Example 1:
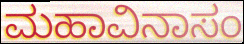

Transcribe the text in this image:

ಮಹಾವಿನಾಸಂ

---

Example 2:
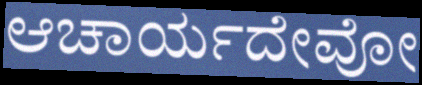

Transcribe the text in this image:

ಆಚಾರ್ಯದೇವೋ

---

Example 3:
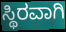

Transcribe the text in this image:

ಸ್ಥಿರವಾಗಿ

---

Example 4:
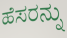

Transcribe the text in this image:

ಹೆಸರನ್ನು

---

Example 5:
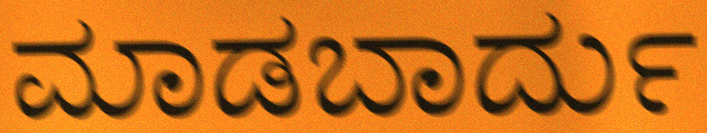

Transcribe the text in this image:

ಮಾಡಬಾರ್ದು